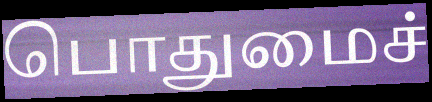
பொதுமைச்